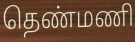
தெண்மணி